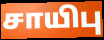
சாயிபு